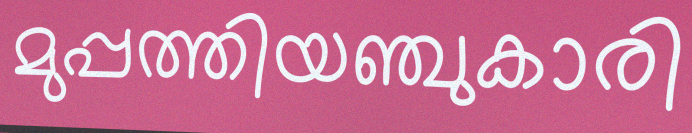
മുപ്പത്തിയഞ്ചുകാരി